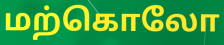
மற்கொலோ